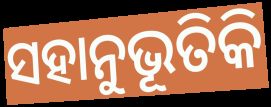
ସହାନୁଭୂତିକି